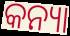
କନ୍ୟା